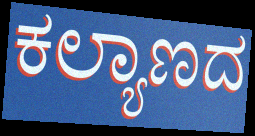
ಕಲ್ಯಾಣದ